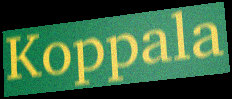
Koppala